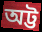
অট্ট